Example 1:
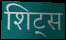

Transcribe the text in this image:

शिट्स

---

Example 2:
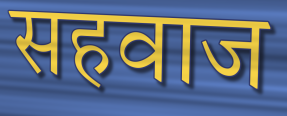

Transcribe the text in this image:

सहवाज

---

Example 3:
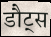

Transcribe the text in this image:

डौट्स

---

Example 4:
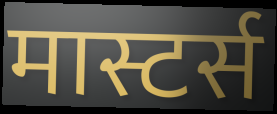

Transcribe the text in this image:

मास्टर्स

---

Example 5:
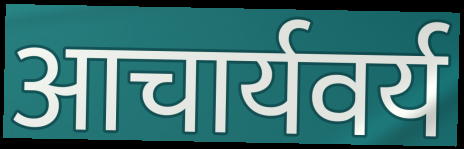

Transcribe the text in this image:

आचार्यवर्य